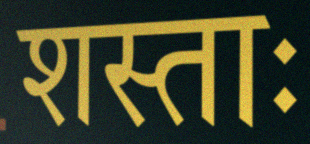
शस्ताः